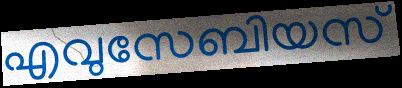
എവുസേബിയസ്